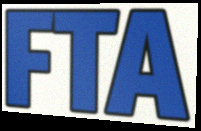
FTA